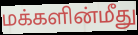
மக்களின்மீது